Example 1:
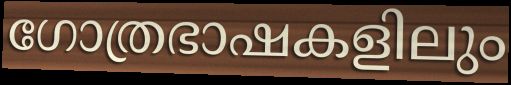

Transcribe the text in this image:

ഗോത്രഭാഷകളിലും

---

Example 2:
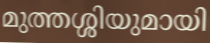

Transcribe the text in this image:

മുത്തശ്ശിയുമായി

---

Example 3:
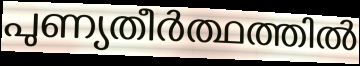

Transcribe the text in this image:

പുണ്യതീർത്ഥത്തിൽ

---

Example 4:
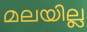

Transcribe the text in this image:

മലയില്ല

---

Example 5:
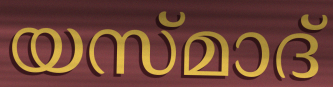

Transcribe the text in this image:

യസ്മാദ്